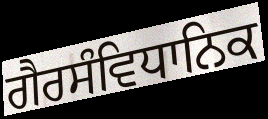
ਗੈਰਸੰਵਿਧਾਨਿਕ